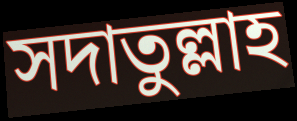
সদাতুল্লাহ